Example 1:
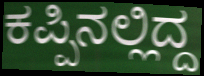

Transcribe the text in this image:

ಕಪ್ಪಿನಲ್ಲಿದ್ದ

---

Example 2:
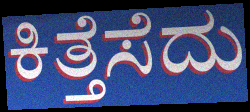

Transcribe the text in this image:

ಕಿತ್ತೆಸೆದು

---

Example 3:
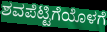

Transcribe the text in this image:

ಶವಪೆಟ್ಟಿಗೆಯೊಳಗೆ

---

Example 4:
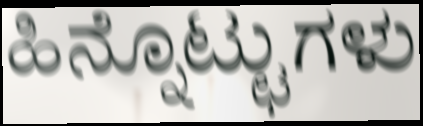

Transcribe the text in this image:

ಹಿನ್ನೊಟ್ಟುಗಳು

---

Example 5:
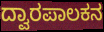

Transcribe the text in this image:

ದ್ವಾರಪಾಲಕನ